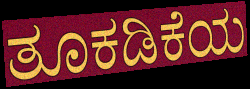
ತೂಕಡಿಕೆಯ